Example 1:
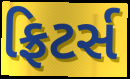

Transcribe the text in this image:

ફ્રિટર્સ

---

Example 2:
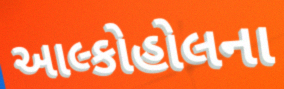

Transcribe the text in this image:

આલ્કોહોલના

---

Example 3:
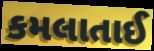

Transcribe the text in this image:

કમલાતાઈ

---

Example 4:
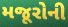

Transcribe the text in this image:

મજૂરોની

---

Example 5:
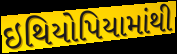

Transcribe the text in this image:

ઇથિયોપિયામાંથી